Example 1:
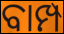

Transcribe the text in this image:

ବାମ୍ପ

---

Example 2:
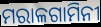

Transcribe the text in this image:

ମରାଳଗାମିନୀ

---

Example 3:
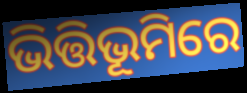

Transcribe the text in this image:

ଭିତ୍ତିଭୂମିରେ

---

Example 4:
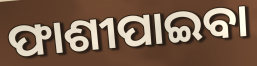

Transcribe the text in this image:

ଫାଶୀପାଇବା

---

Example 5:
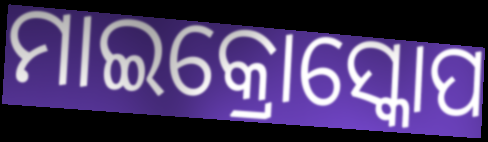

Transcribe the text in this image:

ମାଇକ୍ରୋସ୍କୋପ